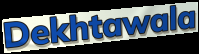
Dekhtawala